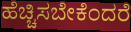
ಹೆಚ್ಚಿಸಬೇಕೆಂದರೆ